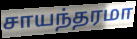
சாயந்தரமா